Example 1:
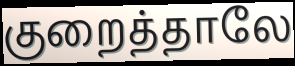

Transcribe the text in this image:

குறைத்தாலே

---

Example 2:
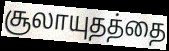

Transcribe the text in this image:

சூலாயுதத்தை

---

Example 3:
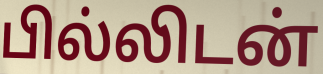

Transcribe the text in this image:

பில்லிடன்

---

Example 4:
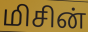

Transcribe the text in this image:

மிசின்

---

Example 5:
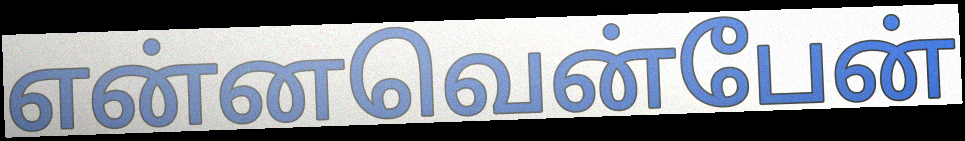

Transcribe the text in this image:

என்னவென்பேன்